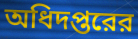
অধিদপ্তরের